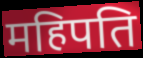
महिपति